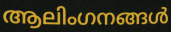
ആലിംഗനങ്ങൾ